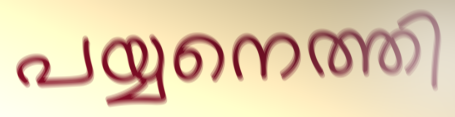
പയ്യനെത്തി